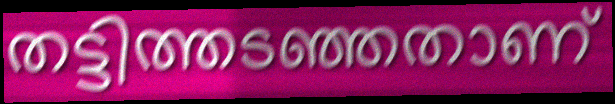
തട്ടിത്തടഞ്ഞതാണ്